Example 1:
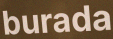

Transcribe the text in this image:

burada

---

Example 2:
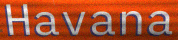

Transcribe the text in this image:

Havana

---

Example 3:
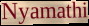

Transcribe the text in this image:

Nyamathi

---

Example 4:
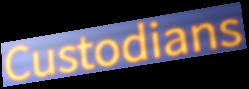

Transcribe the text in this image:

Custodians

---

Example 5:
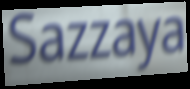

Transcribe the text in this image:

Sazzaya